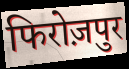
फिरोज़पुर